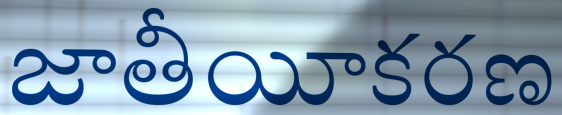
జాతీయీకరణ